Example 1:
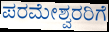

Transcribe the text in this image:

ಪರಮೇಶ್ವರರಿಗೆ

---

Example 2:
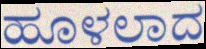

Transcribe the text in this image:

ಹೂಳಲಾದ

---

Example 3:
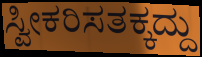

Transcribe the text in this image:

ಸ್ವೀಕರಿಸತಕ್ಕದ್ದು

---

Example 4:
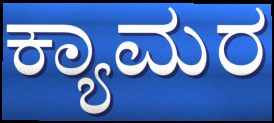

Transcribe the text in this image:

ಕ್ಯಾಮರ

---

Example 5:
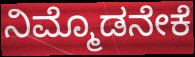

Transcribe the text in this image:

ನಿಮ್ಮೊಡನೇಕೆ